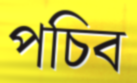
পচিব